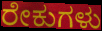
ರೇಕುಗಳು